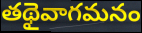
తథైవాగమనం